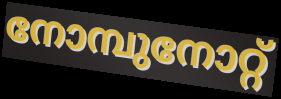
നോമ്പുനോറ്റ്